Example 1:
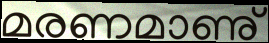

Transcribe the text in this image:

മരണമാണു്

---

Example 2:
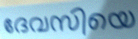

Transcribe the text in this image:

ദേവസിയെ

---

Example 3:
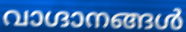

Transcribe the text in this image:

വാഗ്ദാനങ്ങൾ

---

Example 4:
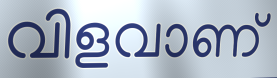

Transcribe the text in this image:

വിളവാണ്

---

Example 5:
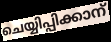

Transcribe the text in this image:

ചെയ്യിപ്പിക്കാന്